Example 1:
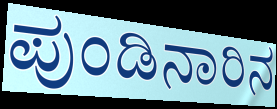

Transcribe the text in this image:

ಪುಂಡಿನಾರಿನ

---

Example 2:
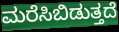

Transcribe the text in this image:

ಮರೆಸಿಬಿಡುತ್ತದೆ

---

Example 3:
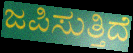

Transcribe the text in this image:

ಜಪಿಸುತ್ತಿದೆ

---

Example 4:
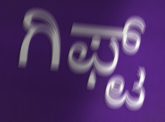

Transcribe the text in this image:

ಗಿಫ್ಟ್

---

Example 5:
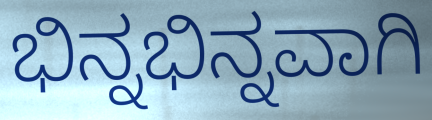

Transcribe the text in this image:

ಭಿನ್ನಭಿನ್ನವಾಗಿ